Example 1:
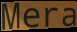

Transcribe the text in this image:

Mera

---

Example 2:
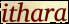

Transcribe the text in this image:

ithara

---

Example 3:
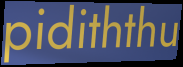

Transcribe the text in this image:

pidiththu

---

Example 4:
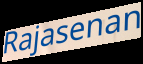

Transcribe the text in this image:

Rajasenan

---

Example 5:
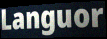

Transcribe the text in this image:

Languor